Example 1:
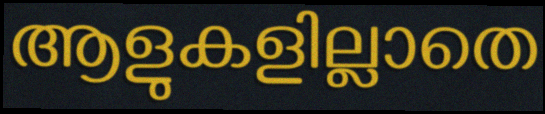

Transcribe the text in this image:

ആളുകളില്ലാതെ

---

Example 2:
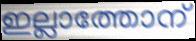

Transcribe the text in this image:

ഇല്ലാത്തോന്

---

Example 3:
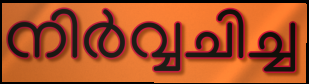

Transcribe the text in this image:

നിർവ്വചിച്ച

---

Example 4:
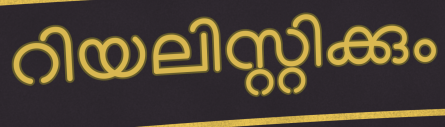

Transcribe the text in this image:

റിയലിസ്റ്റിക്കും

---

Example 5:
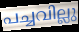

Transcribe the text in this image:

പച്ചവില്ലു